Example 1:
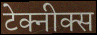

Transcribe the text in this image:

टेक्नीक्स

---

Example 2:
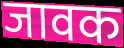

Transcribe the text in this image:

जावक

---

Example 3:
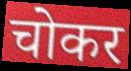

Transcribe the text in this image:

चोकर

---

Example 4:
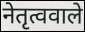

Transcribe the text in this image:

नेतृत्ववाले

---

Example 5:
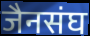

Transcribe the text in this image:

जैनसंघ